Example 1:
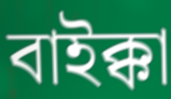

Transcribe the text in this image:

বাইক্কা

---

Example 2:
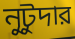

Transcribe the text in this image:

নুটুদার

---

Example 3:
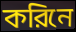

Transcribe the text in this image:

করিনে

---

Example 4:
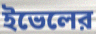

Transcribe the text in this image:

ইভেলের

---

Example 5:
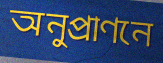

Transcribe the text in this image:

অনুপ্রাণনে